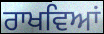
ਰਾਖਵਿਆਂ